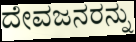
ದೇವಜನರನ್ನು